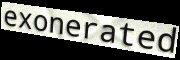
exonerated